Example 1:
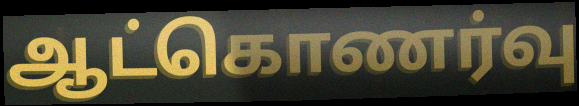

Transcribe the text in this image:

ஆட்கொணர்வு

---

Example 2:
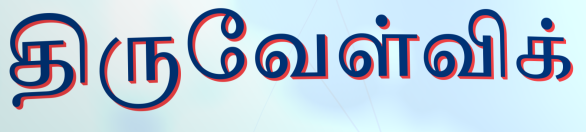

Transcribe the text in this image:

திருவேள்விக்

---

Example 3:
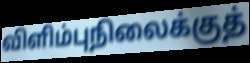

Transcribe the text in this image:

விளிம்புநிலைக்குத்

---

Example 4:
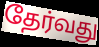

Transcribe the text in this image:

தேர்வது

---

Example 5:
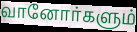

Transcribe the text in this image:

வானோர்களும்